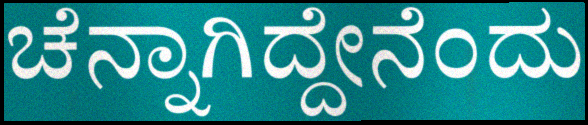
ಚೆನ್ನಾಗಿದ್ದೇನೆಂದು